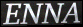
ENNA